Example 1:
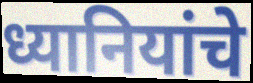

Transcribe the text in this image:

ध्यानियांचे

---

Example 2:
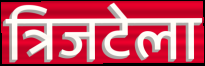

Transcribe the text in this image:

त्रिजटेला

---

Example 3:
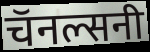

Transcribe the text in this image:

चॅनल्सनी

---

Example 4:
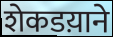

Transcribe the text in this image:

शेकडय़ाने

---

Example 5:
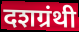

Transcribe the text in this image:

दशग्रंथी